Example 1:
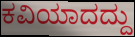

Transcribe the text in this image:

ಕವಿಯಾದದ್ದು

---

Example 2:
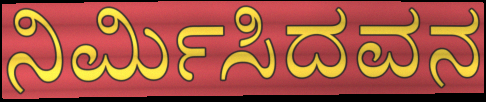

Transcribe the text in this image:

ನಿರ್ಮಿಸಿದವನ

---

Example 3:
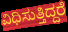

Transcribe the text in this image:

ವಿಧಿಸುತ್ತಿದ್ದರೆ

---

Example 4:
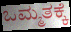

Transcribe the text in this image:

ಒಮ್ಮತಕ್ಕೆ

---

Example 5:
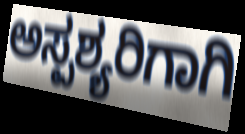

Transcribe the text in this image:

ಅಸ್ಪಶ್ಯರಿಗಾಗಿ